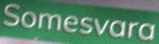
Somesvara